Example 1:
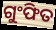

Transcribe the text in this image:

ଗୁଂଫିତ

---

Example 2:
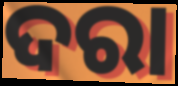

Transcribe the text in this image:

ଦରା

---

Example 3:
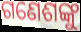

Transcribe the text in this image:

ଗଣେଶଙ୍କୁ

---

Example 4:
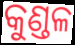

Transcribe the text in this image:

କୁଣ୍ଡଳ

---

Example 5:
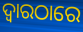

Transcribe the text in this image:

ଦ୍ୱାରଠାରେ